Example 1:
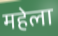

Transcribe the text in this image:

महेला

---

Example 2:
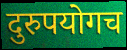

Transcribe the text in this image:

दुरुपयोगच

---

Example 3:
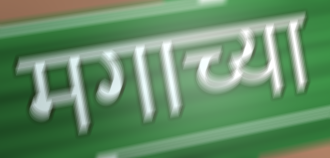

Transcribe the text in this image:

मगाच्या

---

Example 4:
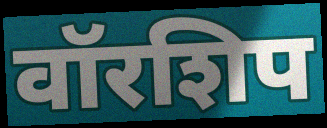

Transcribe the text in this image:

वॉरशिप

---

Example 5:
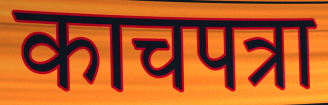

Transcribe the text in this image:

काचपत्रा